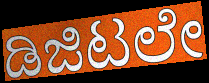
ಡಿಜಿಟಲೇ